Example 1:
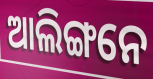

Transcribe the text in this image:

ଆଲିଙ୍ଗନେ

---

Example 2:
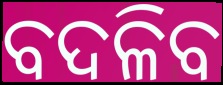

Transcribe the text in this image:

ବଦଳିବ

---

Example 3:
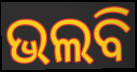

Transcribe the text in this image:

ଭଲବି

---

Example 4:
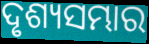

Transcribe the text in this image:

ଦୃଶ୍ୟସମ୍ଭାର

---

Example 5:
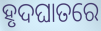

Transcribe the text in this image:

ହୃଦଘାତରେ